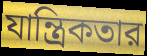
যান্ত্রিকতার